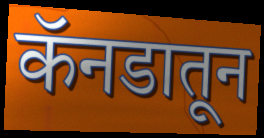
कॅनडातून